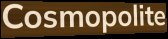
Cosmopolite